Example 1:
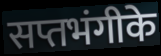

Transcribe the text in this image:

सप्तभंगीके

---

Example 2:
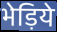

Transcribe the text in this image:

भेड़िये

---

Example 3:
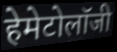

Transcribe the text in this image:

हेमेटोलॉजी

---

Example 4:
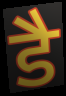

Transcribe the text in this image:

डै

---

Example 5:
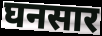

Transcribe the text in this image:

घनसार